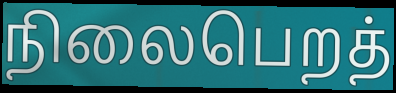
நிலைபெறத்